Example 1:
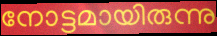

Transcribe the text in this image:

നോട്ടമായിരുന്നു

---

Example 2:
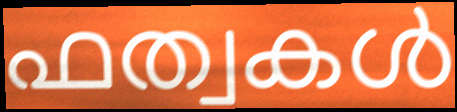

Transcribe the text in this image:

ഫത്വകൾ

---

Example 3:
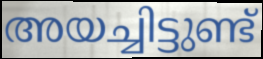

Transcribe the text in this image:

അയച്ചിട്ടുണ്ട്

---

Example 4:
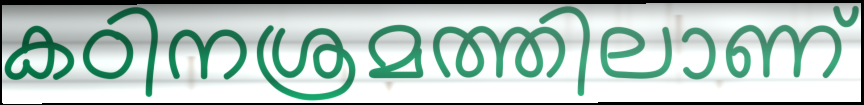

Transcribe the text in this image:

കഠിനശ്രമത്തിലാണ്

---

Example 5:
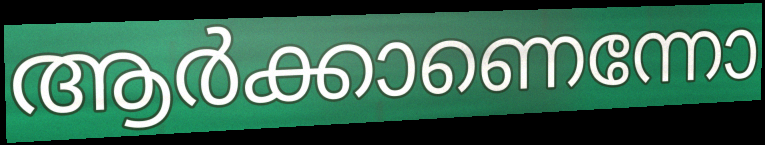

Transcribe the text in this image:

ആർക്കാണെന്നോ